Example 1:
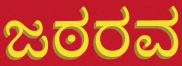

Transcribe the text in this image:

ಜಠರವ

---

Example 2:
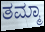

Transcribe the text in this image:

ತಮ್ಮಾ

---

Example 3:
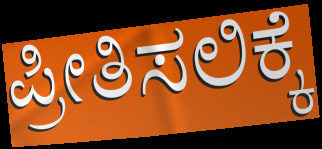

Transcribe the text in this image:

ಪ್ರೀತಿಸಲಿಕ್ಕೆ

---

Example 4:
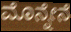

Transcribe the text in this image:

ಮೊನ್ನೇನೆ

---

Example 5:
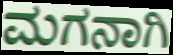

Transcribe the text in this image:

ಮಗನಾಗಿ